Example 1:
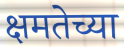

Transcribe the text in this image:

क्षमतेच्या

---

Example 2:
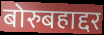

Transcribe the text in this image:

बोरुबहाद्दर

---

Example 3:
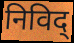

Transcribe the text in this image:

निविद्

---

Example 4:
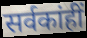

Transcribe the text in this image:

सर्वकांहीं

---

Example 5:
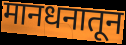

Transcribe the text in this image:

मानधनातून